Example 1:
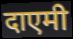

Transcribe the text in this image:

दाएमी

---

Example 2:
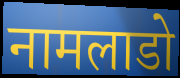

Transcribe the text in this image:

नामलाडो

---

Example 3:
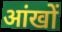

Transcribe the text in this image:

आंखों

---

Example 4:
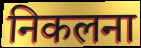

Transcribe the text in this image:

निकलना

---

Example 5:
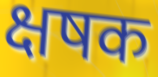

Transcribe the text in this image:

क्षषक